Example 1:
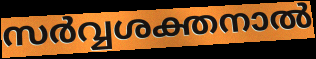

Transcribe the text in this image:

സർവ്വശക്തനാൽ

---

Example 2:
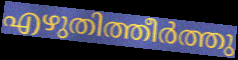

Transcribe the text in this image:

എഴുതിത്തീർത്തു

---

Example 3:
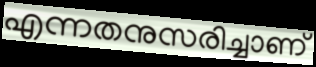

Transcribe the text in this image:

എന്നതനുസരിച്ചാണ്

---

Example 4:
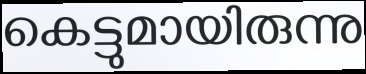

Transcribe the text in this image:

കെട്ടുമായിരുന്നു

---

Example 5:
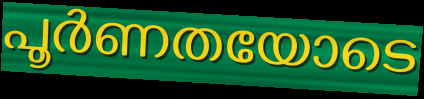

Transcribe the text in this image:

പൂർണതയോടെ